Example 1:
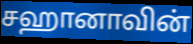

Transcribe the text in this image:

சஹானாவின்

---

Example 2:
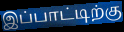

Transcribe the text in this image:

இப்பாட்டிற்கு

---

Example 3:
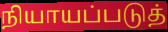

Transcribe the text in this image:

நியாயப்படுத்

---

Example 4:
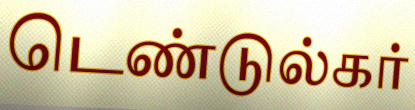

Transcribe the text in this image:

டெண்டுல்கர்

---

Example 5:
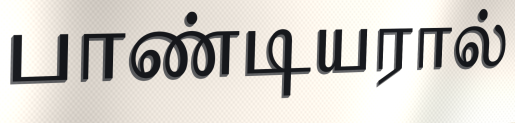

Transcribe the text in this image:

பாண்டியரால்